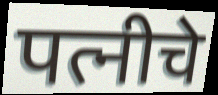
पत्‍नीचे